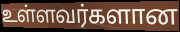
உள்ளவர்களான